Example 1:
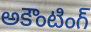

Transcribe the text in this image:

అకౌంటింగ్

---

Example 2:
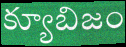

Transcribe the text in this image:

క్యూబిజం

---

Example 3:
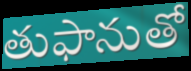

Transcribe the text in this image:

తుఫానుతో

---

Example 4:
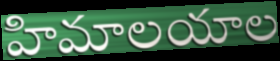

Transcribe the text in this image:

హిమాలయాల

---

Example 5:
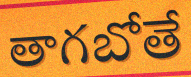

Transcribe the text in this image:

తాగబోతే